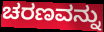
ಚರಣವನ್ನು